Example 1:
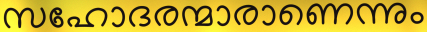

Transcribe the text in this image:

സഹോദരന്മാരാണെന്നും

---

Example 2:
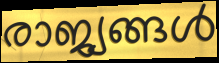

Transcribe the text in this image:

രാജ്യങ്ങൾ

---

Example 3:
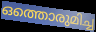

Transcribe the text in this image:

ഒത്തൊരുമിച്ച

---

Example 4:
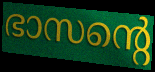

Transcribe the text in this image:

ഭാസന്റെ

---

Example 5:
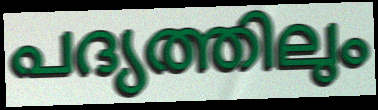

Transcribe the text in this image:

പദ്യത്തിലും